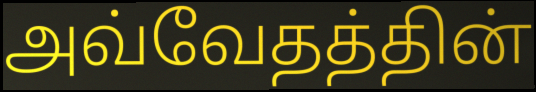
அவ்வேதத்தின்